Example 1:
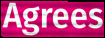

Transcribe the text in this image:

Agrees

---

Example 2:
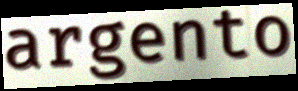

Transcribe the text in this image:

argento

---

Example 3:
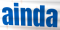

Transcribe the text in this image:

ainda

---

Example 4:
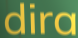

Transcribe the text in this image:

dira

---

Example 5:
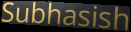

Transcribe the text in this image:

Subhasish